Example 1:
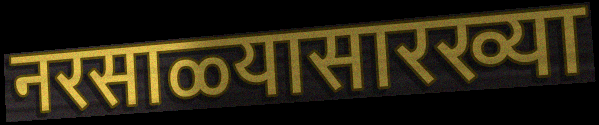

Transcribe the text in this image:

नरसाळ्यासारख्या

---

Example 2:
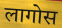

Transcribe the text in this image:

लागोस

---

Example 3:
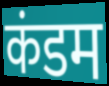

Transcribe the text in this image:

कंडम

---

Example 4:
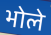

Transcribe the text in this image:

भोले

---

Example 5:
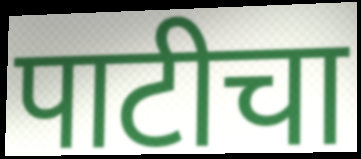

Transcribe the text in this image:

पाटीचा